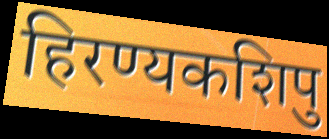
हिरण्यकशिपु